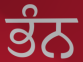
ਭੰਨ